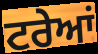
ਟਰੇਆਂ